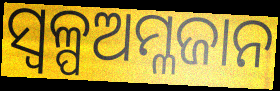
ସ୍ୱଳ୍ପଅମ୍ଳଜାନ